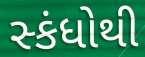
સ્કંધોથી